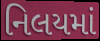
નિલયમાં